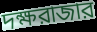
দক্ষরাজার